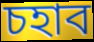
চহাব